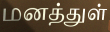
மனத்துள்